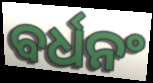
ବର୍ଧନଂ